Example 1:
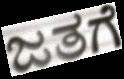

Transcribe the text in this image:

ಜತಗೆ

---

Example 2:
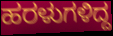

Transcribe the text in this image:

ಹರಳುಗಳಿದ್ದ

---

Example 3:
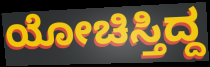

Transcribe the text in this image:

ಯೋಚಿಸ್ತಿದ್ದ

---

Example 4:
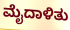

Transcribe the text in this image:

ಮೈದಾಳಿತು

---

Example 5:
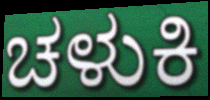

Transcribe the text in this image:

ಚಳುಕಿ